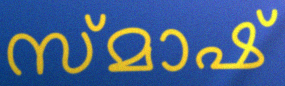
സ്മാഷ്